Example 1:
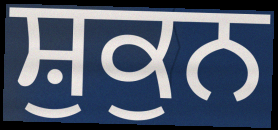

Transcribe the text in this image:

ਸ਼ੁਕੁਨ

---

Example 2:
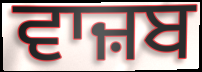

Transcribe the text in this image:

ਵਾਜ਼ਬ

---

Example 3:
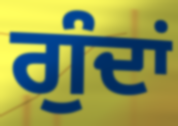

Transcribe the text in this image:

ਗੁੰਦਾਂ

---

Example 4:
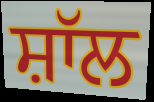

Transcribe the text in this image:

ਸ਼ਾੱਲ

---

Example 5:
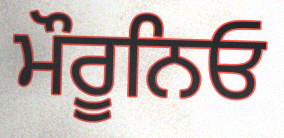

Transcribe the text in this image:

ਮੌਰੂਨਿਓ